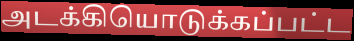
அடக்கியொடுக்கப்பட்ட